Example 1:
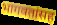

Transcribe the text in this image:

भागवतांसह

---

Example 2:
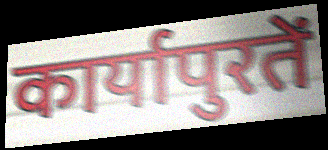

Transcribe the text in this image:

कार्यापुरतें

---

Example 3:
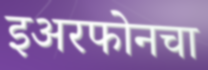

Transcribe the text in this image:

इअरफोनचा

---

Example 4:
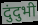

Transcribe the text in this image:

दुंदुभी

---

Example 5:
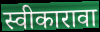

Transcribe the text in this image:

स्वीकारावा